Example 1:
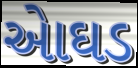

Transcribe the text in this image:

એાઘડ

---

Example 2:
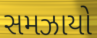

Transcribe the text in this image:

સમઝાયો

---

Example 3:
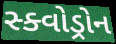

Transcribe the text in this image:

સ્ક્વોડ્રોન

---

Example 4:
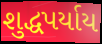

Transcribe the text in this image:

શુદ્ધપર્યાય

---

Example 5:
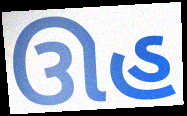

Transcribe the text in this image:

ઊહ